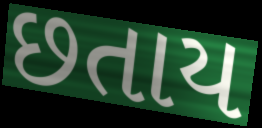
છતાય